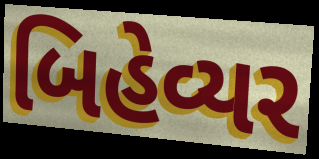
બિહેવ્યર